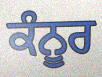
ਕੰਨੂਰ